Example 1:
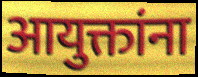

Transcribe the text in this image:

आयुक्तांना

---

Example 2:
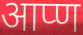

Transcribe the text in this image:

आप्ण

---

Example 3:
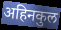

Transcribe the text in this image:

अहिनकुल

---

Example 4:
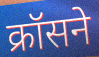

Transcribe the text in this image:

क्रॉसने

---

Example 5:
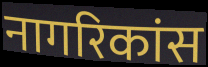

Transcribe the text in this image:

नागरिकांस